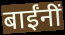
बाईंनीं